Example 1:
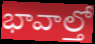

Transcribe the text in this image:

భావాల్తో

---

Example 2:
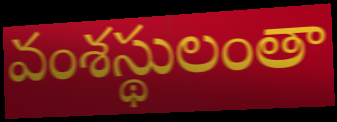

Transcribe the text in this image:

వంశస్థులంతా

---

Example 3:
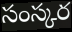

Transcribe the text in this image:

సంస్కర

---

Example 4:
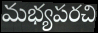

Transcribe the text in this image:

మభ్యపరచి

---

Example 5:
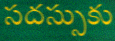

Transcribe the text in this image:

సదస్సుకు